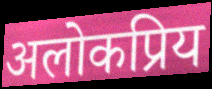
अलोकप्रिय